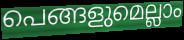
പെങ്ങളുമെല്ലാം